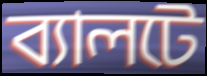
ব্যালটে